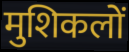
मुशिकलों